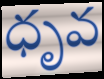
ధృవ